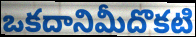
ఒకదానిమీదొకటి